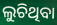
ଲୁଚିଥିବା